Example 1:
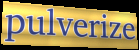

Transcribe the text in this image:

pulverize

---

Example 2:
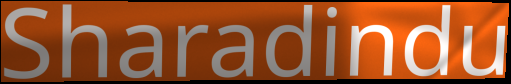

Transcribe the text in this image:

Sharadindu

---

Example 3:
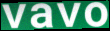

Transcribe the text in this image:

vavo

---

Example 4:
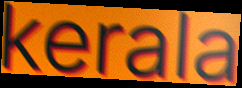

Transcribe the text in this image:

kerala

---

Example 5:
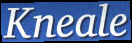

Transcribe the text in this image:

Kneale